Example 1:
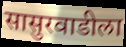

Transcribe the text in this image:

सासुरवाडीला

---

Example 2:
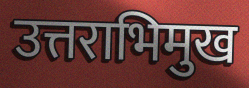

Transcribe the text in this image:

उत्तराभिमुख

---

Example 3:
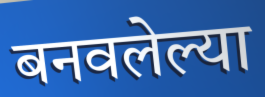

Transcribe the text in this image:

बनवलेल्या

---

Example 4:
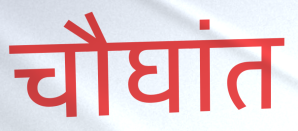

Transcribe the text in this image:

चौघांत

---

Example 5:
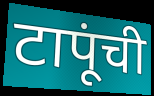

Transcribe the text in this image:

टापूंची